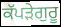
ਕੱਪੜੇਗੁਰੂ